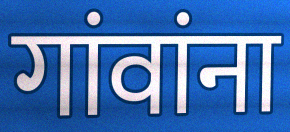
गांवांना